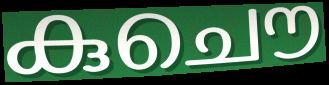
കുചൌ